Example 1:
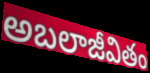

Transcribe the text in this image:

అబలాజీవితం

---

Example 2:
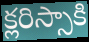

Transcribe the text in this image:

క్లరిస్సాకి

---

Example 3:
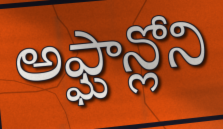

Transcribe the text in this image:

అఫ్ఘాన్లోని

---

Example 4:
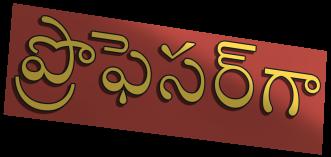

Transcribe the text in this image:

ప్రొఫెసర్‌గా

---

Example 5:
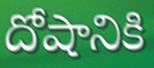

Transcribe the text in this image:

దోషానికి